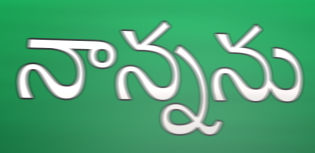
నాన్నను